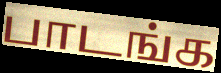
பாடங்க